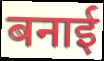
बनाई